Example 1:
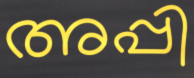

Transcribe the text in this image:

അപ്പി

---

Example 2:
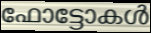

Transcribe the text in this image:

ഫോട്ടോകൾ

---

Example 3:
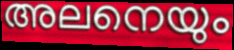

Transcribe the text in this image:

അലനെയും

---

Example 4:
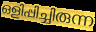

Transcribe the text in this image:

ഒളിപ്പിച്ചിരുന്ന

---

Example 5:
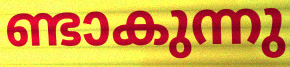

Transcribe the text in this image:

ണ്ടാകുന്നു